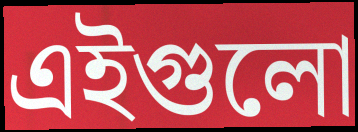
এইগুলো